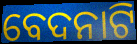
ବେଦନାଟି